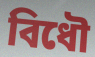
বিধৌ